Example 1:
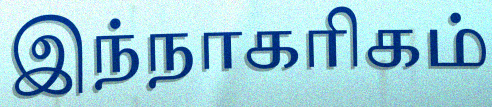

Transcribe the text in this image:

இந்நாகரிகம்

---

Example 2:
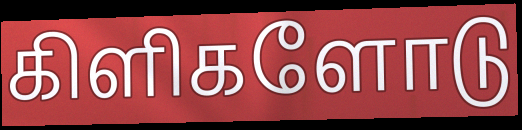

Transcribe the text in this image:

கிளிகளோடு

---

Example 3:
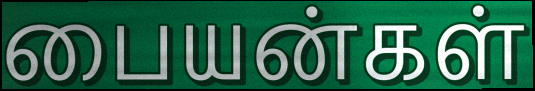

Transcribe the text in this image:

பையன்கள்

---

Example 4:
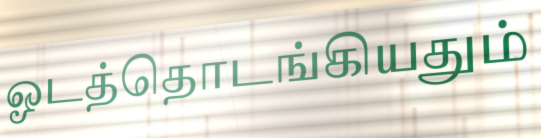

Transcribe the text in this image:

ஓடத்தொடங்கியதும்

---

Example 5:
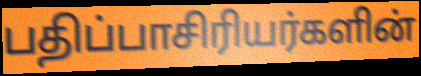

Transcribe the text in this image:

பதிப்பாசிரியர்களின்